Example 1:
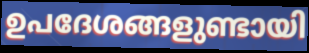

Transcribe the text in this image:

ഉപദേശങ്ങളുണ്ടായി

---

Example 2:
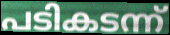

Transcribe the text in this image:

പടികടന്ന്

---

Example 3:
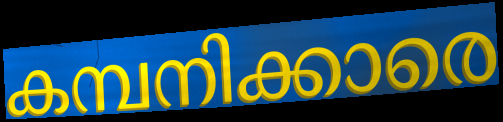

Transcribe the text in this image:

കമ്പനിക്കാരെ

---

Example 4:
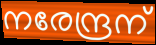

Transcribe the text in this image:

നരേന്ദ്രന്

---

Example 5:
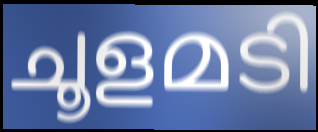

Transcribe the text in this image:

ചൂളമടി